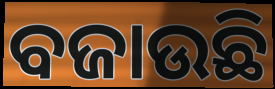
ବଜାଉଛି